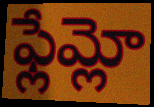
ఫ్లేమ్లో